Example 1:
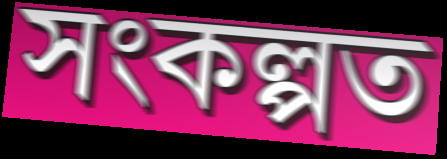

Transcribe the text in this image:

সংকল্পত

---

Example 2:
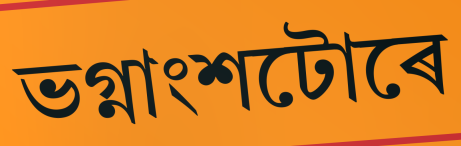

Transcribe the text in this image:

ভগ্নাংশটোৰে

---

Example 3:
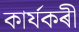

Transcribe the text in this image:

কাৰ্যকৰী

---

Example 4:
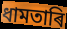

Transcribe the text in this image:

ধামতাৰি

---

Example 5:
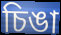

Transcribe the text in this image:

চিঙা